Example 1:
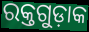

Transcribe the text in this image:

ରକ୍ତଗୁଡ଼ାକ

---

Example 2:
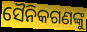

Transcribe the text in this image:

ସୈନିକଗଣଙ୍କୁ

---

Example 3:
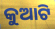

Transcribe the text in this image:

କୁଆଟି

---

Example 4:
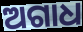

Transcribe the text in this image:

ଅଗାଧ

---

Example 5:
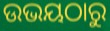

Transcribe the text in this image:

ଉଭୟଠାରୁ